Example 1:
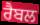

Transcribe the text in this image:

ਰੈਬਲ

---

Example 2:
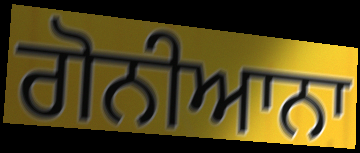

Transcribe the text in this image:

ਗੋਨੀਆਨਾ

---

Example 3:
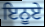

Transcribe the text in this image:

ਇਨੂਏ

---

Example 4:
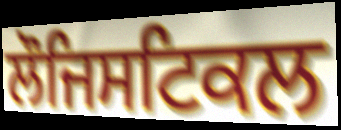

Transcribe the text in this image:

ਲੌਜਿਸਟਿਕਲ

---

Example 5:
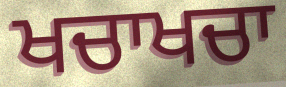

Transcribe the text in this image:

ਖਚਾਖਚਾ